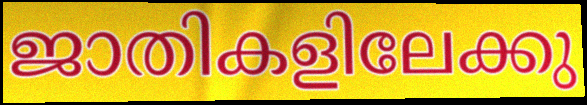
ജാതികളിലേക്കു